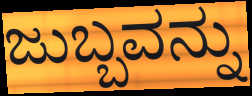
ಜುಬ್ಬವನ್ನು